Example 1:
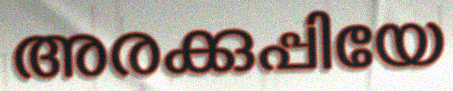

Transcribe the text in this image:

അരക്കുപ്പിയേ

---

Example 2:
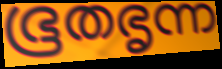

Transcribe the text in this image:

ഭൂതഭൃന്ന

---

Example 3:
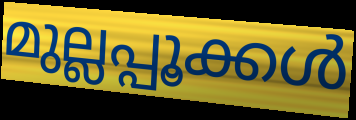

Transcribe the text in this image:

മുല്ലപ്പൂക്കൾ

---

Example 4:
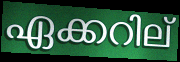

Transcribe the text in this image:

ഏക്കറില്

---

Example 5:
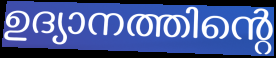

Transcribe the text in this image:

ഉദ്യാനത്തിന്റെ